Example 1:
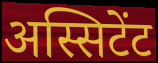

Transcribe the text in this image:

अस्सिटेंट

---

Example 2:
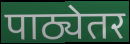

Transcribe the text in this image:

पाठ्येतर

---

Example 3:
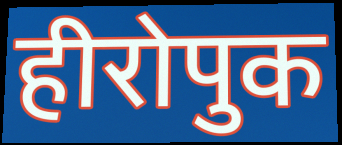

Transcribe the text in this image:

हीरोपुक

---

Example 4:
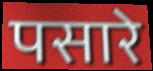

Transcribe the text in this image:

पसारे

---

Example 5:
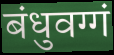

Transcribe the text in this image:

बंधुवग्गं